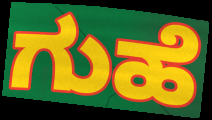
ಗುಹೆ